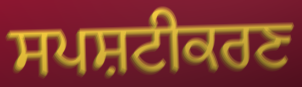
ਸਪਸ਼ਟੀਕਰਣ